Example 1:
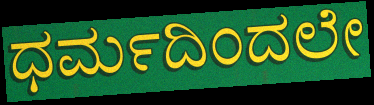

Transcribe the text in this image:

ಧರ್ಮದಿಂದಲೇ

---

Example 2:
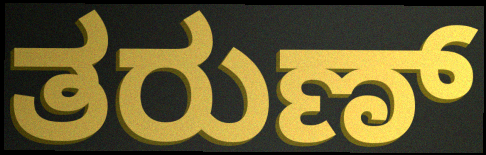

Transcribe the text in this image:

ತರುಣ್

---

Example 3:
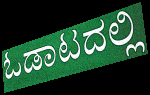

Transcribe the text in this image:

ಓಡಾಟದಲ್ಲಿ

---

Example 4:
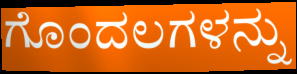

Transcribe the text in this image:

ಗೊಂದಲಗಳನ್ನು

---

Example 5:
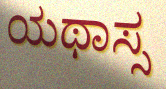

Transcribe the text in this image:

ಯಥಾಸ್ಸ